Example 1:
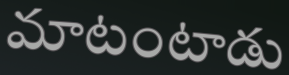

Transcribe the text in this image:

మాటంటాడు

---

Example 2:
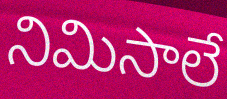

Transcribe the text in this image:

నిమిసాలే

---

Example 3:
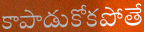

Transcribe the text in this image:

కాపాడుకోకపోతే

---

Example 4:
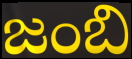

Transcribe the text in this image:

జంబి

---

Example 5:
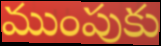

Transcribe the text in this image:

ముంపుకు